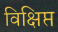
विक्षिप्त